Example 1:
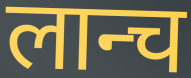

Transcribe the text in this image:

लान्‍च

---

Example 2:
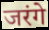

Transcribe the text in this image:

जरंगे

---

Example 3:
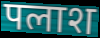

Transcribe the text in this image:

पलाश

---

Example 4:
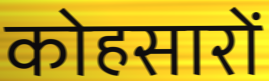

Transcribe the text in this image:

कोहसारों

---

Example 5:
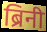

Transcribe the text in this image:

ब्रिनी